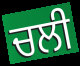
ਚਲੀ